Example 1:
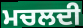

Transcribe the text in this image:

ਮਚਲਦੀ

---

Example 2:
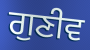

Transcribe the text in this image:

ਗੁਣੀਵ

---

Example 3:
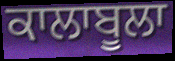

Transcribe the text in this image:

ਕਾਲਾਬੂਲਾ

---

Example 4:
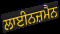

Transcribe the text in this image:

ਲਾਈਨਜ਼ਮੈਨ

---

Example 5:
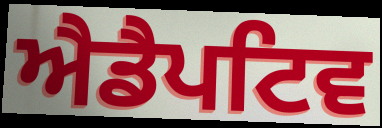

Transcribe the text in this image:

ਐਡੈਪਟਿਵ